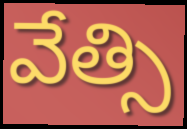
వేత్సి